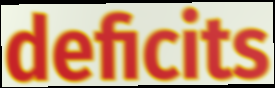
deficits